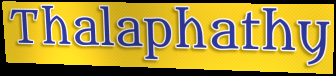
Thalaphathy